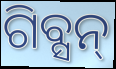
ଗିବ୍ସନ୍